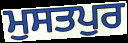
ਮੁਸਤਪੁਰ